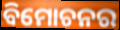
ବିମୋଚନର